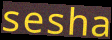
sesha